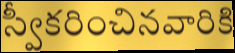
స్వీకరించినవారికి